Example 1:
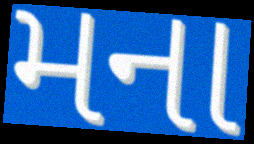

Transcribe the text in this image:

મના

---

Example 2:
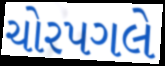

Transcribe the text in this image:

ચોરપગલે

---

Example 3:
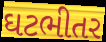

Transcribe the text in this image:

ઘટભીતર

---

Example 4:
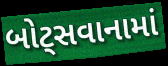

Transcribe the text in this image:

બોટ્સવાનામાં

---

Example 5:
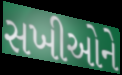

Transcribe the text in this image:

સખીઓને